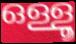
ഒള്ളൂ